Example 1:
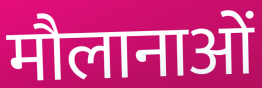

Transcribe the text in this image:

मौलानाओं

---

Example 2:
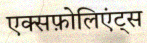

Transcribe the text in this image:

एक्सफ़ोलिएंट्स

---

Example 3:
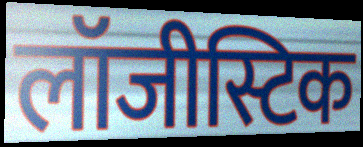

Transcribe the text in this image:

लॉजीस्टिक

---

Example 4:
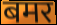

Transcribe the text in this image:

बमर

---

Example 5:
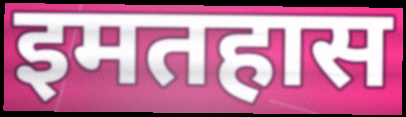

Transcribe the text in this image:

इमतहास